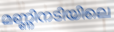
മണ്ണിനടിയിലെ